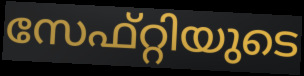
സേഫ്റ്റിയുടെ